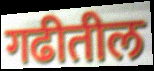
गढीतील